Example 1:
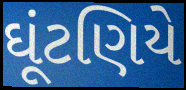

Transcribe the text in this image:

ઘૂંટણિયે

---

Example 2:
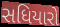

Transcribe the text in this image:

સધિયારો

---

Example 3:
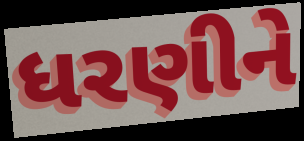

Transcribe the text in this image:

ધરણીને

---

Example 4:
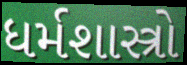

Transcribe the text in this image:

ધર્મશાસ્ત્રો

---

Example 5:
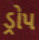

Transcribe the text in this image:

ડ્રોપ